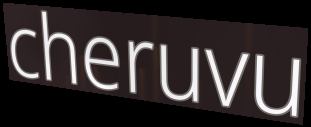
cheruvu